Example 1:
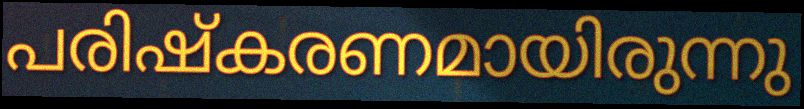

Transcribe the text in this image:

പരിഷ്കരണമായിരുന്നു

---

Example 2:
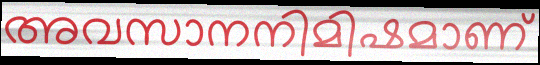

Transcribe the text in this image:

അവസാനനിമിഷമാണ്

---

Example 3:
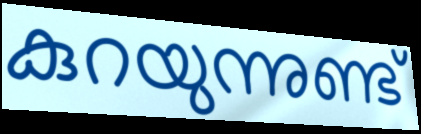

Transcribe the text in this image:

കുറയുന്നുണ്ട്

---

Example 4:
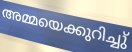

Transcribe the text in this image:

അമ്മയെക്കുറിച്ചു്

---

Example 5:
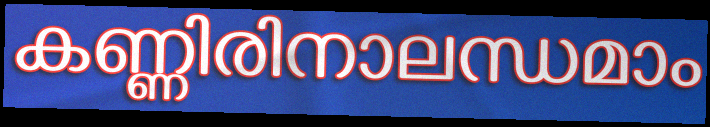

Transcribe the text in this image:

കണ്ണിരിനാലന്ധമാം